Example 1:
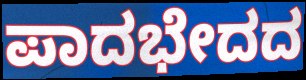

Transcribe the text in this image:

ಪಾದಭೇದದ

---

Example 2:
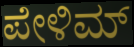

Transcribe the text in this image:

ಪೇಳಿಮ್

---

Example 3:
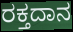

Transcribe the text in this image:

ರಕ್ತದಾನ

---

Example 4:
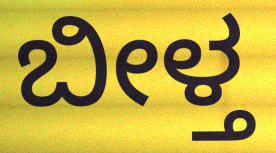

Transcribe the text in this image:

ಬೀಳ್ತ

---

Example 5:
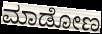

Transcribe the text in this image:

ಮಾಡೋಣ